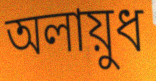
অলায়ুধ